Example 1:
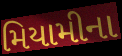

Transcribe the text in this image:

મિયામીના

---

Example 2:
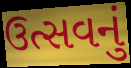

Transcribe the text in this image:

ઉત્સવનું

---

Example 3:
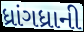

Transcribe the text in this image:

ધ્રાંગધ્રાની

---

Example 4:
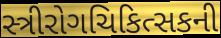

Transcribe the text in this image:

સ્ત્રીરોગચિકિત્સકની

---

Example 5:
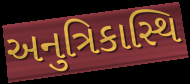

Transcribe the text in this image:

અનુત્રિકાસ્થિ